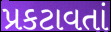
પ્રકટાવતાં